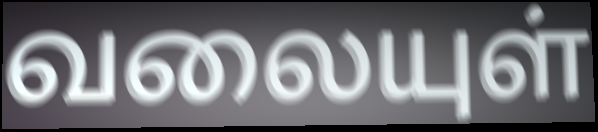
வலையுள்